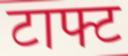
टाफ्ट